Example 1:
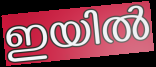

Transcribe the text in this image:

ഇയിൽ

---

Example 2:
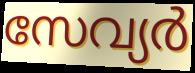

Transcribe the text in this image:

സേവ്യർ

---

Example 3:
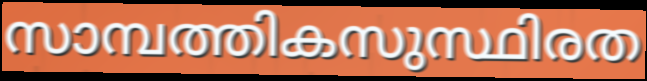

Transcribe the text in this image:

സാമ്പത്തികസുസ്ഥിരത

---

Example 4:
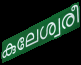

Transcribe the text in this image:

കുലേശ്വരീ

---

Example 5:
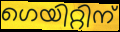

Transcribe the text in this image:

ഗെയിറ്റിന്